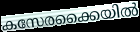
കസേരക്കൈയിൽ